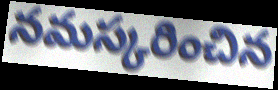
నమస్కరించిన